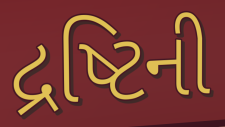
દ્રષ્ટિની